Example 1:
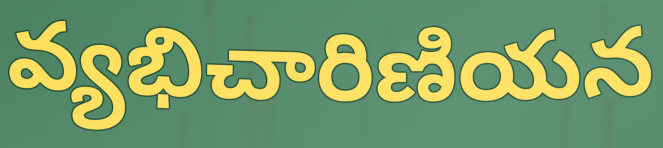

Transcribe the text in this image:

వ్యభిచారిణియన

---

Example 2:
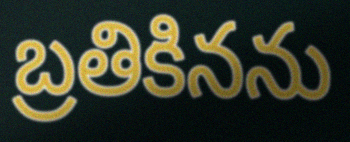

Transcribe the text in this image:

బ్రతికినను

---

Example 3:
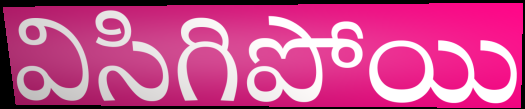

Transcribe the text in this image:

విసిగిపోయి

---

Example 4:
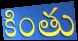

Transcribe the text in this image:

కింతు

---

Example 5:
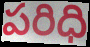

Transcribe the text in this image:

పరిధి